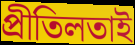
প্ৰীতিলতাই